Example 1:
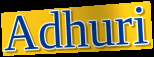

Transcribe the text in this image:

Adhuri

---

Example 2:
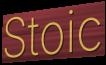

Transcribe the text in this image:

Stoic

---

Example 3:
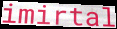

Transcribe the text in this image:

imirtal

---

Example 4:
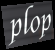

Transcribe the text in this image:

plop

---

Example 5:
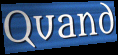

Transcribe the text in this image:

Quand